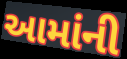
આમાંની